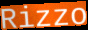
Rizzo